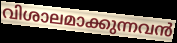
വിശാലമാക്കുന്നവൻ